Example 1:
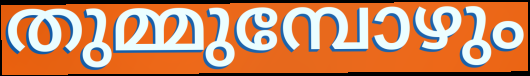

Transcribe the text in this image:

തുമ്മുമ്പോഴും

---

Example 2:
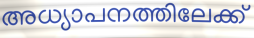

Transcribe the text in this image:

അധ്യാപനത്തിലേക്ക്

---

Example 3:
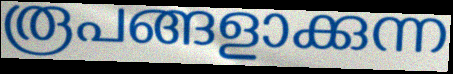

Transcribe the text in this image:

രൂപങ്ങളാക്കുന്ന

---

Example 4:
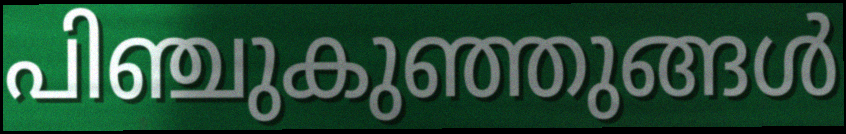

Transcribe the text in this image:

പിഞ്ചുകുഞ്ഞുങ്ങൾ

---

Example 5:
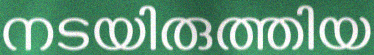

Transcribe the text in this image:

നടയിരുത്തിയ